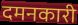
दमनकारी